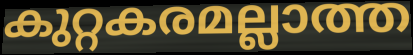
കുറ്റകരമല്ലാത്ത